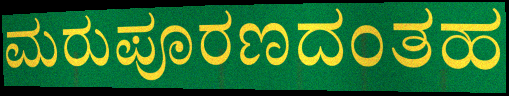
ಮರುಪೂರಣದಂತಹ